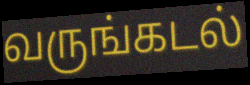
வருங்கடல்